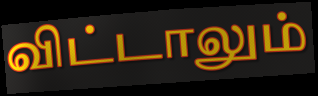
விட்டாலும்